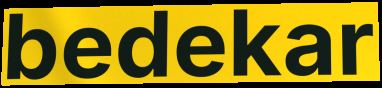
bedekar